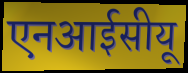
एनआईसीयू